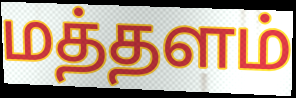
மத்தளம்